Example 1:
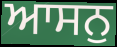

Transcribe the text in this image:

ਆਸਨੁ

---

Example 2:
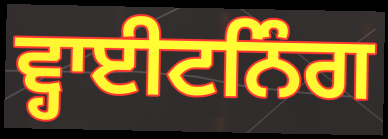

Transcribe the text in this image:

ਵ੍ਹਾਈਟਨਿੰਗ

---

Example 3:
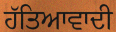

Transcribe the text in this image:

ਹੱਤਿਆਵਾਦੀ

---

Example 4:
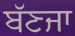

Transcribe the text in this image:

ਬੱਣਜਾ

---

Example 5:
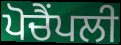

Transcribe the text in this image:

ਪੋਚੈਂਪਲੀ